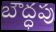
బౌద్ధపు